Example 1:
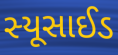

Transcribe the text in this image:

સ્યૂસાઈડ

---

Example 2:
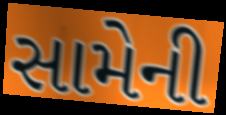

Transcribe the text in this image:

સામેની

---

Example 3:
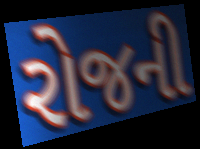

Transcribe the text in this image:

રોજની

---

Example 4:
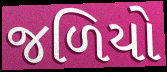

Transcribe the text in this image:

જળિયો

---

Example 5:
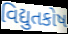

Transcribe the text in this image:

વિદ્યુતકોષ